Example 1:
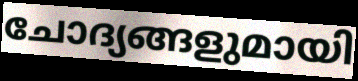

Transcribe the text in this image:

ചോദ്യങ്ങളുമായി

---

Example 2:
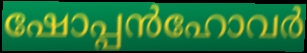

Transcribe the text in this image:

ഷോപ്പൻഹോവർ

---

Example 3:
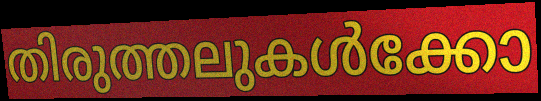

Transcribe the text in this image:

തിരുത്തലുകൾക്കോ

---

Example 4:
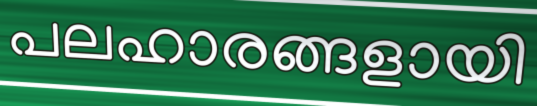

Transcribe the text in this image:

പലഹാരങ്ങളായി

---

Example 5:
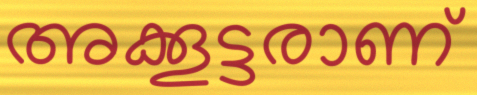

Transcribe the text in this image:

അക്കൂട്ടരാണ്